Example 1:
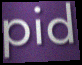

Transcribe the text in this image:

pid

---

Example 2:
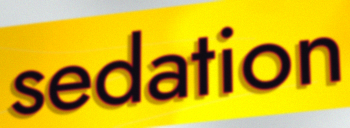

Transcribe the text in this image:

sedation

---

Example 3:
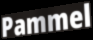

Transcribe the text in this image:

Pammel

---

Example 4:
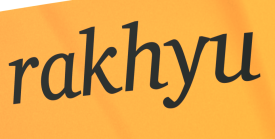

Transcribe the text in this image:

rakhyu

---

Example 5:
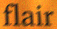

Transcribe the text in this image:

flair